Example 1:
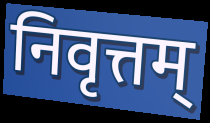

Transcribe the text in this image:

निवृत्तम्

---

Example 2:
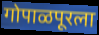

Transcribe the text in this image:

गोपाळपूरला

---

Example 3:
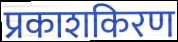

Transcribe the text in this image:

प्रकाशकिरण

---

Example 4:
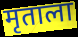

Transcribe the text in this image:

मृताला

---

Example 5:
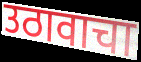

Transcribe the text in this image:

उठावाचा